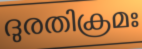
ദുരതിക്രമഃ